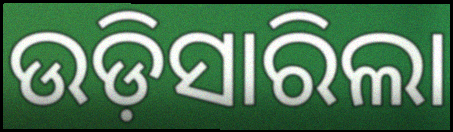
ଉଡ଼ିସାରିଲା